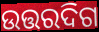
ଉତ୍ତରଦିଗ